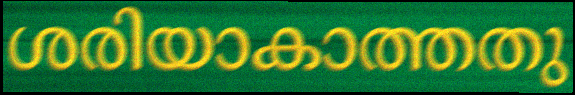
ശരിയാകാത്തതു